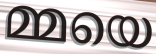
മ്മയെ